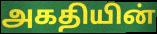
அகதியின்